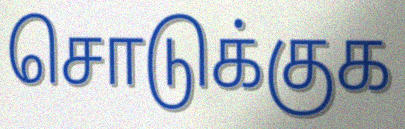
சொடுக்குக